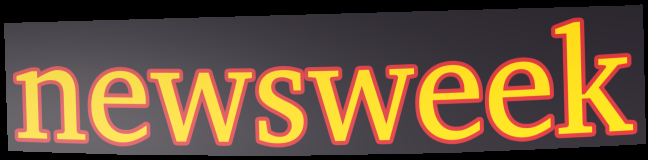
newsweek